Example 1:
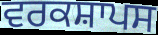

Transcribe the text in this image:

ਵਰਕਸ਼ਾਪਸ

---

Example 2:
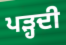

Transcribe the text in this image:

ਪਡ਼੍ਹਦੀ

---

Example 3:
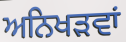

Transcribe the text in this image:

ਅਨਿਖੜਵਾਂ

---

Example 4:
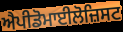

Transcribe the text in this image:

ਐਪੀਡੋਮਾਈਲੋਜ਼ਿਸਟ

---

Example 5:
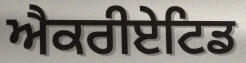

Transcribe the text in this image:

ਐਕਰੀਏਟਿਡ